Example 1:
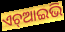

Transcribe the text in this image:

ଏଚ୍ଆଇଭି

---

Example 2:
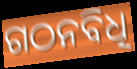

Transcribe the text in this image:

ଗଠନବିଧି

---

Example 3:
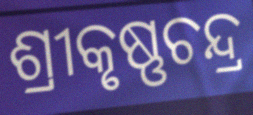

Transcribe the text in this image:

ଶ୍ରୀକୃଷ୍ଣଚନ୍ଦ୍ର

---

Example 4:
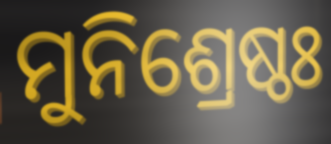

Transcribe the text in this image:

ମୁନିଶ୍ରେଷ୍ଠଃ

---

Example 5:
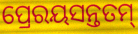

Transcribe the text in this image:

ପ୍ରେରୟସନ୍ତତମ୍